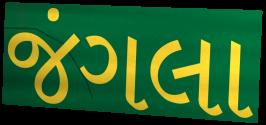
જંગલા